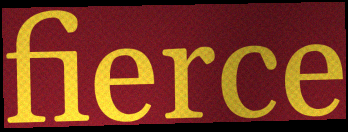
fierce